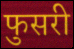
फुसरी